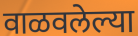
वाळवलेल्या